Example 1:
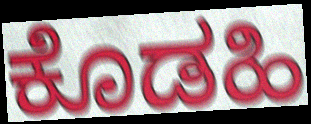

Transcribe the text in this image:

ಕೊಡಹಿ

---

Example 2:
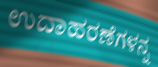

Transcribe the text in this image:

ಉದಾಹರಣೆಗಳನ್ನ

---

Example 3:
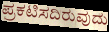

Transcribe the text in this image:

ಪ್ರಕಟಿಸದಿರುವುದು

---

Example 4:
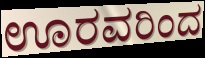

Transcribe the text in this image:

ಊರವರಿಂದ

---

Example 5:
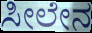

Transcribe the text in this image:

ಸೀಲೇನ